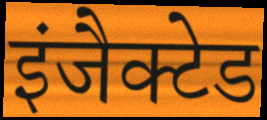
इंजैक्टेड